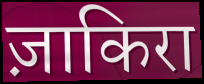
ज़ाकिरा